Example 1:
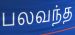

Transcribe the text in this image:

பலவந்த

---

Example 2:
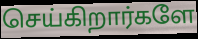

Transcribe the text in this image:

செய்கிறார்களே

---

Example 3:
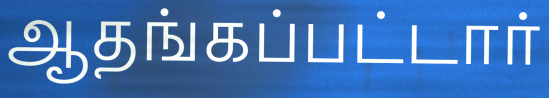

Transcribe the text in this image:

ஆதங்கப்பட்டார்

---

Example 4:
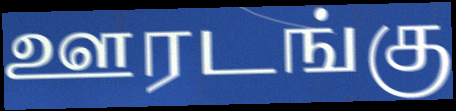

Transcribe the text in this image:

ஊரடங்கு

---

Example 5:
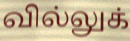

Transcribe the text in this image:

வில்லுக்